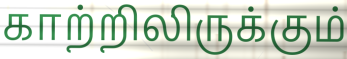
காற்றிலிருக்கும்